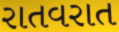
રાતવરાત